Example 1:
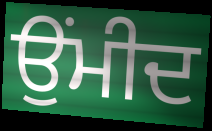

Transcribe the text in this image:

ਉਂਮੀਦ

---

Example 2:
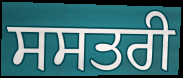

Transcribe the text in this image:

ਸਸਤਰੀ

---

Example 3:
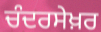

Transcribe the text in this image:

ਚੰਦਰਸੇਖ਼ਰ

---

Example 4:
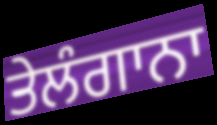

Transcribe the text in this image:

ਤੇਲੰਗਾਨਾ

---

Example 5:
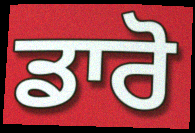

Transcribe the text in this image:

ਡਾਰੋ